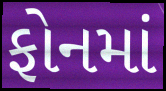
ફોનમાં